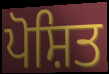
ਪੋਸ਼ਿਤ